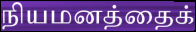
நியமனத்தைக்